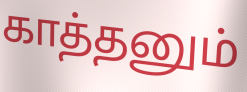
காத்தனும்